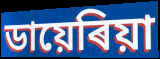
ডায়েৰিয়া